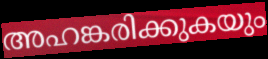
അഹങ്കരിക്കുകയും